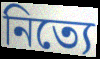
নিত্যে